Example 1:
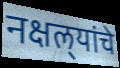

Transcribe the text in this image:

नक्षल्यांचे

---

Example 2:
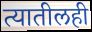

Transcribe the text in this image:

त्यातीलही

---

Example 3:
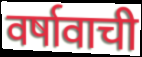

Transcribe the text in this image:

वर्षावाची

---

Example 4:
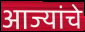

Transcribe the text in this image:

आज्यांचे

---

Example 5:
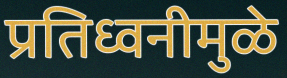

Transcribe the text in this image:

प्रतिध्वनीमुळे